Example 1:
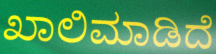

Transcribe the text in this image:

ಖಾಲಿಮಾಡಿದೆ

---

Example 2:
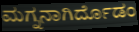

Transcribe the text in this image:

ಮಗ್ನನಾಗಿರ್ದೊಡಂ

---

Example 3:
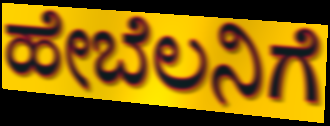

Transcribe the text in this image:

ಹೇಬೆಲನಿಗೆ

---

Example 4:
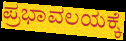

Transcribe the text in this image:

ಪ್ರಭಾವಲಯಕ್ಕೆ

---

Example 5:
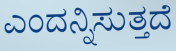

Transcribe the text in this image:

ಎಂದನ್ನಿಸುತ್ತದೆ